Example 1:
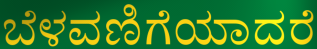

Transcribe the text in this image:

ಬೆಳವಣಿಗೆಯಾದರೆ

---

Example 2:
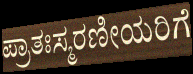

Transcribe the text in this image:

ಪ್ರಾತಃಸ್ಮರಣೀಯರಿಗೆ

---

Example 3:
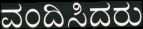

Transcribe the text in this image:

ವಂದಿಸಿದರು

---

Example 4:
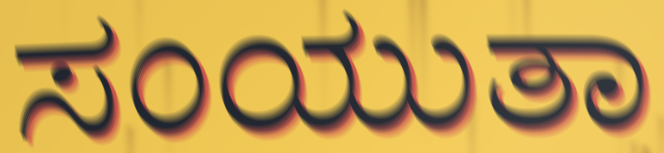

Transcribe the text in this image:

ಸಂಯುತಾ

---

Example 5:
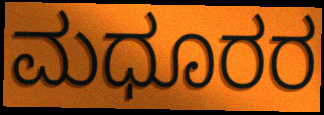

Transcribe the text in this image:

ಮಧೂರರ